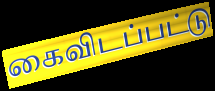
கைவிடப்பட்டு